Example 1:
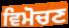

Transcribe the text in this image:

ਵਿਮੋਚਣ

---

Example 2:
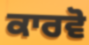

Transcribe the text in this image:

ਕਾਰਵੋ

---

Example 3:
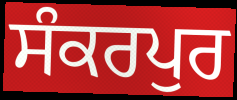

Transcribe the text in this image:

ਸੰਕਰਪੁਰ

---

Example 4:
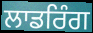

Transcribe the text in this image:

ਲਾਡਰਿੰਗ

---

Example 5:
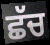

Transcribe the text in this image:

ਛੱਚ